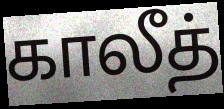
காலீத்